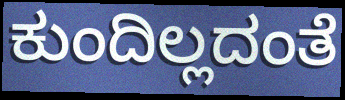
ಕುಂದಿಲ್ಲದಂತೆ